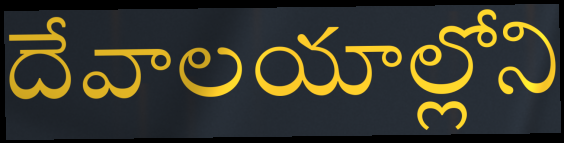
దేవాలయాల్లోని